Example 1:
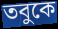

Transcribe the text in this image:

তবুকে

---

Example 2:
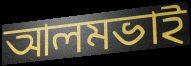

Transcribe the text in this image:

আলমভাই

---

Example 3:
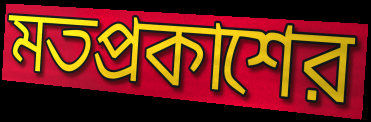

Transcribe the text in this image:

মতপ্রকাশের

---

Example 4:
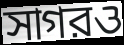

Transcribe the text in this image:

সাগরও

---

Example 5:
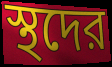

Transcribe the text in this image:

স্থদের